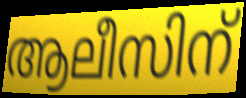
ആലീസിന്